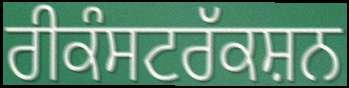
ਰੀਕੰਸਟਰੱਕਸ਼ਨ